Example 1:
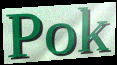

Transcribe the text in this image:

Pok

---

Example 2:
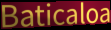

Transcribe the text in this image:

Baticaloa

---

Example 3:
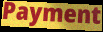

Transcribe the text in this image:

Payment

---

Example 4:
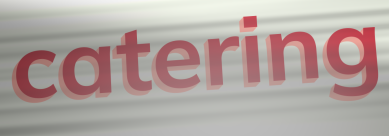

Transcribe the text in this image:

catering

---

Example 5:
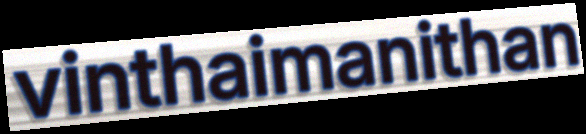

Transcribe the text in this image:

vinthaimanithan